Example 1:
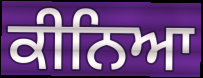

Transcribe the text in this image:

ਕੀਨਿਆ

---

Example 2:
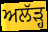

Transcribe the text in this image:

ਅਲੱੜ੍ਹ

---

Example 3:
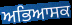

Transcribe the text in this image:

ਅਭਿਆਸਕ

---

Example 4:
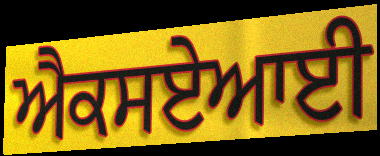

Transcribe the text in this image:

ਐਕਸਏਆਈ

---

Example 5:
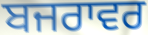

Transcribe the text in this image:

ਬਜਰਾਵਰ